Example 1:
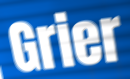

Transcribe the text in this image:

Grier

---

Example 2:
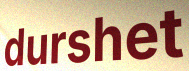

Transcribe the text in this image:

durshet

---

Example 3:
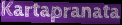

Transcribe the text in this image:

Kartapranata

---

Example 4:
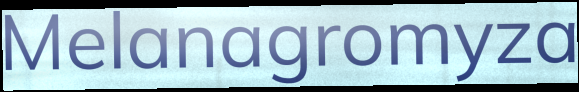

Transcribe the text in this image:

Melanagromyza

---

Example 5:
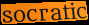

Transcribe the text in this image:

socratic